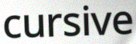
cursive